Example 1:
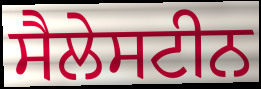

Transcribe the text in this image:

ਸੈਲੇਸਟੀਨ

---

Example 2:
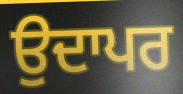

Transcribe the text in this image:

ਉਦਾਪਰ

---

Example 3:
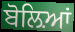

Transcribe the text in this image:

ਬੋਲ਼ਿਆਂ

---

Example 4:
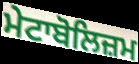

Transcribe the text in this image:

ਮੇਟਾਬੋਲਿਜ਼ਮ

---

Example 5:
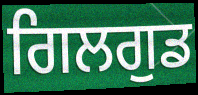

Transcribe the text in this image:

ਗਿਲਗੁਡ